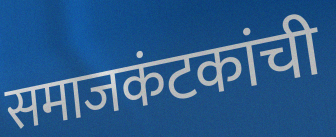
समाजकंटकांची